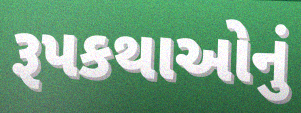
રૂપકથાઓનું